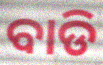
ବାଡି